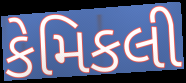
કેમિકલી